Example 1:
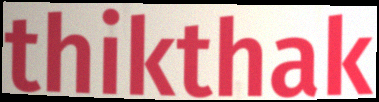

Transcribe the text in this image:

thikthak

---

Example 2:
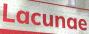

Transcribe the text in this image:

Lacunae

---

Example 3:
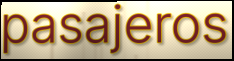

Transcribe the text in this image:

pasajeros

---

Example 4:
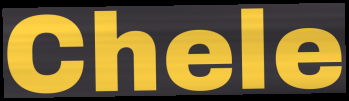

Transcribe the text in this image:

Chele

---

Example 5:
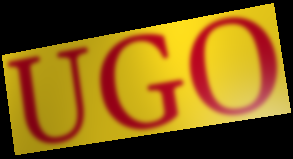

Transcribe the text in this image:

UGO